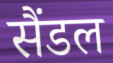
सैंडल